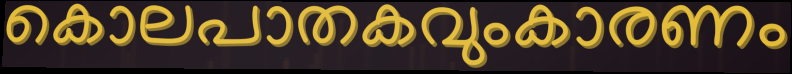
കൊലപാതകവുംകാരണം